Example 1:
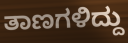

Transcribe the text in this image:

ತಾಣಗಳಿದ್ದು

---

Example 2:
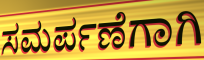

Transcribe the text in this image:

ಸಮರ್ಪಣೆಗಾಗಿ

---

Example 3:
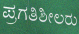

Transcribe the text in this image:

ಪ್ರಗತಿಶೀಲರು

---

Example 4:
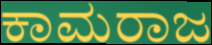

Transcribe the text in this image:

ಕಾಮರಾಜ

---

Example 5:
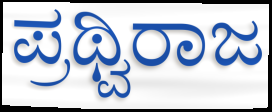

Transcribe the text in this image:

ಪ್ರಥ್ವಿರಾಜ